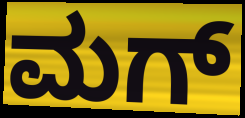
ಮಗ್